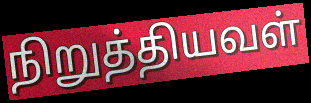
நிறுத்தியவள்